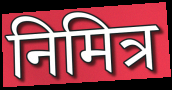
निमित्र